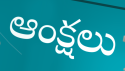
ఆంక్షలు